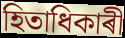
হিতাধিকাৰী